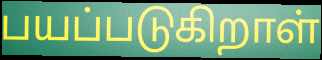
பயப்படுகிறாள்